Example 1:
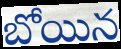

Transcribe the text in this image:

బోయిన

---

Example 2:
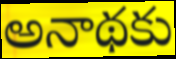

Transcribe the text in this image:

అనాథకు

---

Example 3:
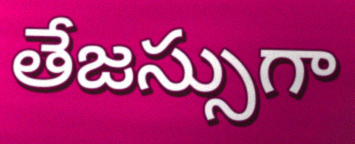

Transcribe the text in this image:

తేజస్సుగా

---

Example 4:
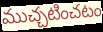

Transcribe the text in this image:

ముచ్చటించటం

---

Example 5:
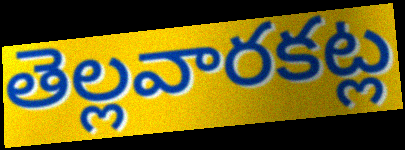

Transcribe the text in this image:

తెల్లవారకట్ల